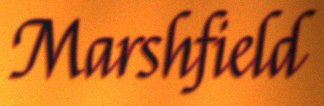
Marshfield